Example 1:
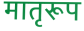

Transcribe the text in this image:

मातृरूप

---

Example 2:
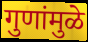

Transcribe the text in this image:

गुणांमुळे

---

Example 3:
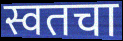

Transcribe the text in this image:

स्वतचा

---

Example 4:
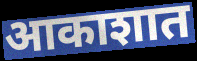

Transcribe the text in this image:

आकाशात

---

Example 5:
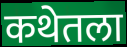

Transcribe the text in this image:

कथेतला